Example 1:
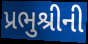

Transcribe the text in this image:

પ્રભુશ્રીની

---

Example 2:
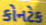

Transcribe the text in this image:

કોનટેક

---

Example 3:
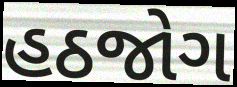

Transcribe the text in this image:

હઠજોગ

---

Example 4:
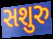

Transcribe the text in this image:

સશુરુ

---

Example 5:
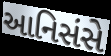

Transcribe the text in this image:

આનિસંસે